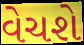
વેચશે